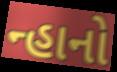
ન્હાનો